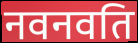
नवनवति